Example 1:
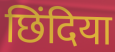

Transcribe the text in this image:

छिंदिया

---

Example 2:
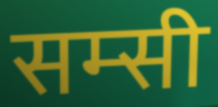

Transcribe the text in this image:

सम्सी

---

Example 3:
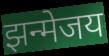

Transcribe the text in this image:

झन्मेजय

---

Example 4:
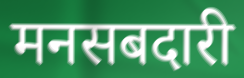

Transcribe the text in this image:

मनसबदारी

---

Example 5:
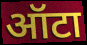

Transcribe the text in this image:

ऑटा